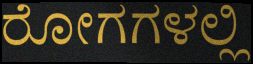
ರೋಗಗಳಲ್ಲಿ